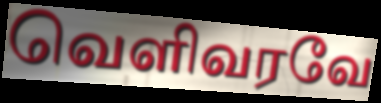
வெளிவரவே